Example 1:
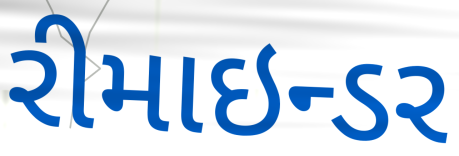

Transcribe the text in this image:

રીમાઇન્ડર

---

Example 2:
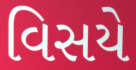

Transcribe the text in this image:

વિસયે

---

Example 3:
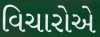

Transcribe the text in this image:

વિચારોએ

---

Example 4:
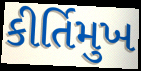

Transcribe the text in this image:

કીર્તિમુખ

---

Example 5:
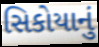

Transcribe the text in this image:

સિકોયાનું